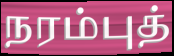
நரம்புத்